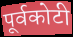
पूर्वकोटी